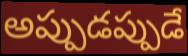
అప్పుడప్పుడే